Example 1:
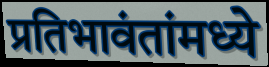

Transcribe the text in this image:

प्रतिभावंतांमध्ये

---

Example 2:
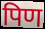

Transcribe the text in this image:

पिण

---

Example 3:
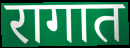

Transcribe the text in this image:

रागात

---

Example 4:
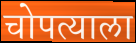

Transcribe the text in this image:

चोपत्याला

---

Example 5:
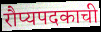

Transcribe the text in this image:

रौप्यपदकाची